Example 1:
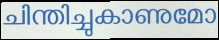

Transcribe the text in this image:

ചിന്തിച്ചുകാണുമോ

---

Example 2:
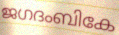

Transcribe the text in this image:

ജഗദംബികേ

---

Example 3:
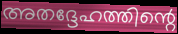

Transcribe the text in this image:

അതദ്ദേഹത്തിന്റെ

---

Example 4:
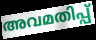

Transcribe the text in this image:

അവമതിപ്പ്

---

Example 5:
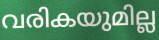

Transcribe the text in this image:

വരികയുമില്ല